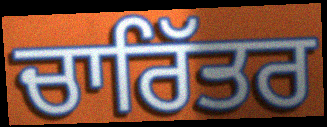
ਚਾਰਿੱਤਰ